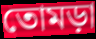
তোমড়া